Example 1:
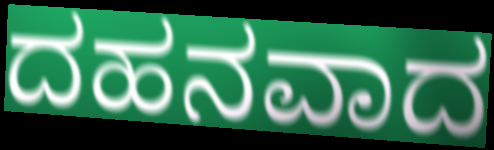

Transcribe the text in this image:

ದಹನವಾದ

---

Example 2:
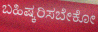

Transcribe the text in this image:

ಬಹಿಷ್ಕರಿಸಬೇಕೋ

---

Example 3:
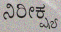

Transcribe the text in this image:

ನಿರೀಕ್ಷ್ಯ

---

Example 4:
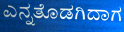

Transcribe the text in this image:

ಎನ್ನತೊಡಗಿದಾಗ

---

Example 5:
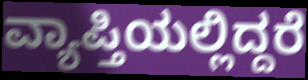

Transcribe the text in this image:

ವ್ಯಾಪ್ತಿಯಲ್ಲಿದ್ದರೆ